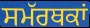
ਸਮੱਰਥਕਾਂ